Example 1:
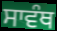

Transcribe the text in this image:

ਸਾਵੰਥ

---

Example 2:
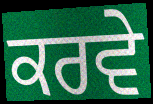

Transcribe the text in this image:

ਕਰਵੇ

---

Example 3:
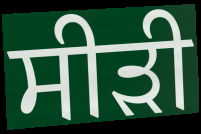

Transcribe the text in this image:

ਸੀੜੀ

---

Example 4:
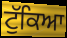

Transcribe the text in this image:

ਟੁੱਕਿਆ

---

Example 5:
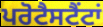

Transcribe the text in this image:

ਪਰੋਟੈਸਟੈਂਟਾਂ